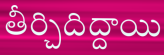
తీర్చిదిద్దాయి